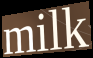
milk